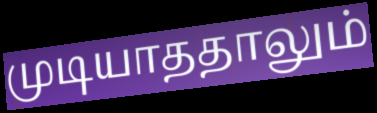
முடியாததாலும்